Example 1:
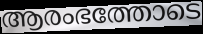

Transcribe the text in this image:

ആരംഭത്തോടെ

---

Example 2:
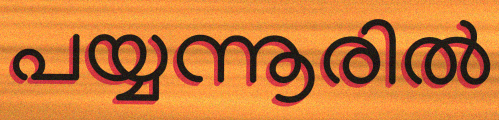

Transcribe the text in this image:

പയ്യന്നൂരിൽ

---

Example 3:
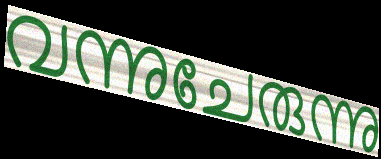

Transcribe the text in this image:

വന്നുചേരുന്നു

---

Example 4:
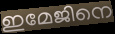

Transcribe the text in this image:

ഇമേജിനെ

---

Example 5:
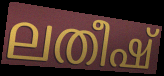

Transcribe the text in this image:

ലതീഷ്